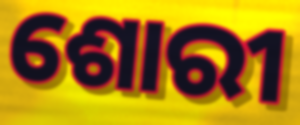
ଶୋରୀ